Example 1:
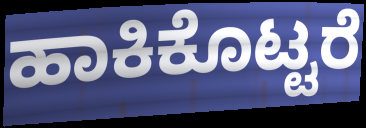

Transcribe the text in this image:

ಹಾಕಿಕೊಟ್ಟರೆ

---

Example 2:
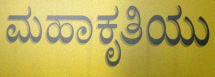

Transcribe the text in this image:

ಮಹಾಕೃತಿಯು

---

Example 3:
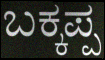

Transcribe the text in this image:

ಬಕ್ಕಪ್ಪ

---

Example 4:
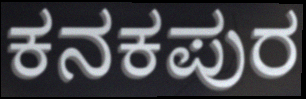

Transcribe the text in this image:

ಕನಕಪುರ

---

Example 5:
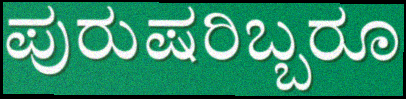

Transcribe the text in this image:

ಪುರುಷರಿಬ್ಬರೂ